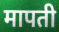
मापती